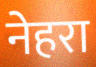
नेहरा